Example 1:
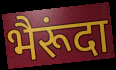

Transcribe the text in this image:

भैरूंदा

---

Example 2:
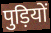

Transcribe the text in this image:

पुड़ियों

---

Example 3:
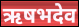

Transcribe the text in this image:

ऋषभदेव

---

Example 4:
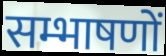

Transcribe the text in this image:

सम्भाषणों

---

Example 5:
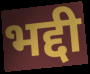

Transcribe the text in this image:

भद्दी